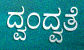
ದ್ವಂದ್ವತೆ